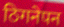
ठिगनेपन